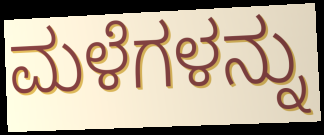
ಮಳೆಗಳನ್ನು